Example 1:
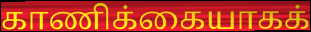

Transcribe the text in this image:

காணிக்கையாகக்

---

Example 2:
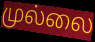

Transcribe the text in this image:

முல்லை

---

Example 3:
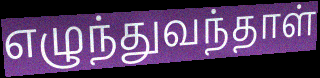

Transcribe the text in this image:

எழுந்துவந்தாள்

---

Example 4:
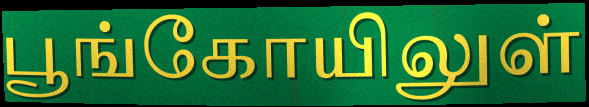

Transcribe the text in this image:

பூங்கோயிலுள்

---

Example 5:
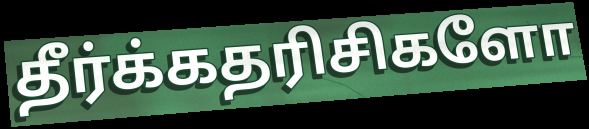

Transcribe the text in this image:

தீர்க்கதரிசிகளோ